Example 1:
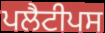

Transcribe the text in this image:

ਪਲੈਟੀਪਸ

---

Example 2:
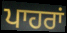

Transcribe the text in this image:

ਪਾਹਰਾਂ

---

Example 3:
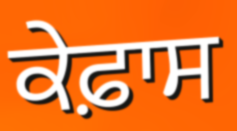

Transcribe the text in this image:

ਕੇਫ਼ਾਸ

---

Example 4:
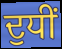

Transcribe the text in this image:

ਦੁਧੀਂ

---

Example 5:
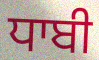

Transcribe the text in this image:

ਧਾਬੀ